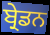
ਬ੍ਰੇਡਨ